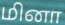
மினா